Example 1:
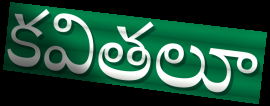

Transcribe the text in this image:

కవితలూ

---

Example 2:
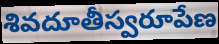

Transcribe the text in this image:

శివదూతీస్వరూపేణ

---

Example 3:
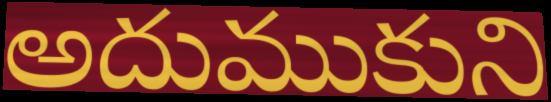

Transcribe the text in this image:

అదుముకుని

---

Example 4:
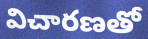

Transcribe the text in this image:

విచారణతో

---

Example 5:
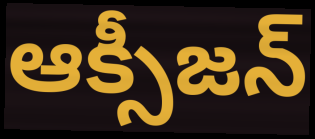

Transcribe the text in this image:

ఆక్సీజన్